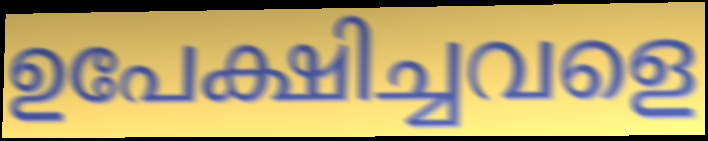
ഉപേക്ഷിച്ചവളെ